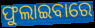
ଫୁଲାଇବାରେ